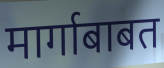
मार्गाबाबत